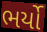
ભર્યો